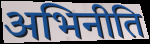
अभिनीति